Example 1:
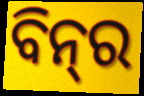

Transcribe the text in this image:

ବିନ୍‍ର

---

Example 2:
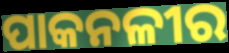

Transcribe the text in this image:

ପାକନଳୀର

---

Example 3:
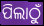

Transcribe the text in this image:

ପିଲାଠୁଁ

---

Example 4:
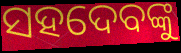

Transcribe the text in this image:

ସହଦେବଙ୍କୁ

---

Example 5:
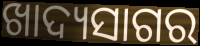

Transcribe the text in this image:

ଖାଦ୍ୟସାଗର